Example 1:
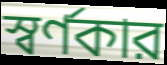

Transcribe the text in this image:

স্বর্ণকার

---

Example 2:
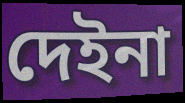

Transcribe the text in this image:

দেইনা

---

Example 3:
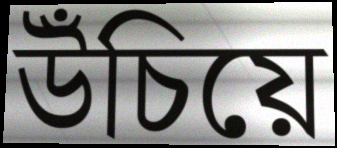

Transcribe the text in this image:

উঁচিয়ে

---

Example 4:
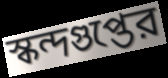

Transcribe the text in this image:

স্কন্দগুপ্তের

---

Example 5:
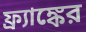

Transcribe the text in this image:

ফ্র্যাঙ্কের